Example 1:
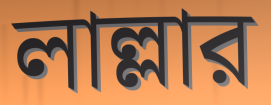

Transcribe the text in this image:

লাল্লার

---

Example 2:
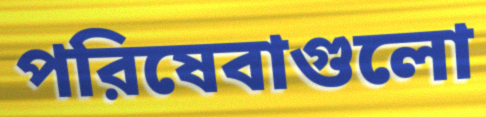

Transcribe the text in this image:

পরিষেবাগুলো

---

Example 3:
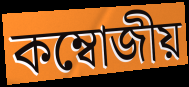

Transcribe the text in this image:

কম্বোজীয়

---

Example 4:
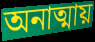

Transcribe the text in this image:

অনাত্মায়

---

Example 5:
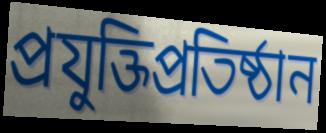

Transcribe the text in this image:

প্রযুক্তিপ্রতিষ্ঠান